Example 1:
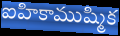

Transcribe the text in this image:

ఐహికాముష్మిక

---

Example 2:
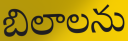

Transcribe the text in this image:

బిలాలను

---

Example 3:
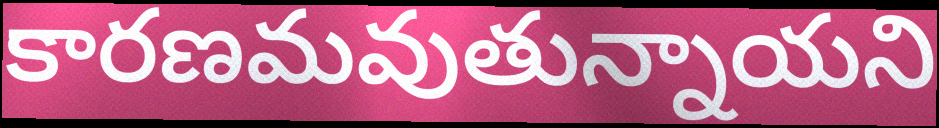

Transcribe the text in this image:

కారణమవుతున్నాయని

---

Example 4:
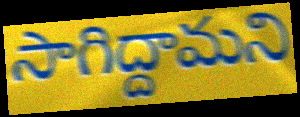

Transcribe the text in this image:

సాగిద్దామని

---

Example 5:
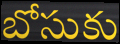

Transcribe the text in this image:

బోసుకు